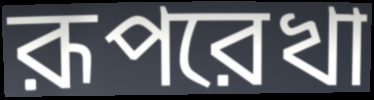
রূপরেখা